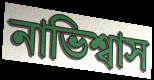
নাভিশ্বাস